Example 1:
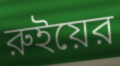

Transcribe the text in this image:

রুইয়ের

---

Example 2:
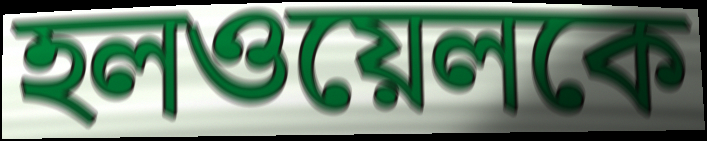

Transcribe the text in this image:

হলওয়েলকে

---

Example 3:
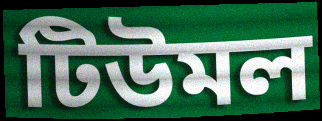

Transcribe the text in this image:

টিউমল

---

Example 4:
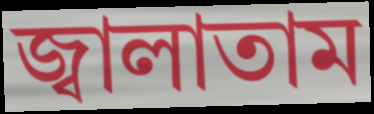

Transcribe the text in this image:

জ্বালাতাম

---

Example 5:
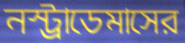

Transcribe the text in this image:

নস্ট্রাডেমাসের